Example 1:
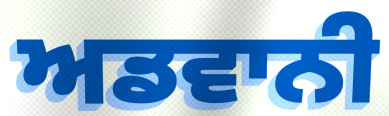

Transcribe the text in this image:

ਅਡਵਾਨੀ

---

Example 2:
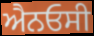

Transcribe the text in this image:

ਐਨਓਸੀ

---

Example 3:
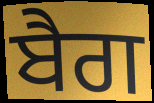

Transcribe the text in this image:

ਬੈਗ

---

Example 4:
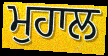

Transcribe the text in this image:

ਮੁਹਾਲ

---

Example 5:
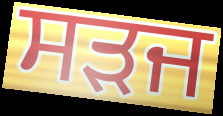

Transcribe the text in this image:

ਸੜਜ